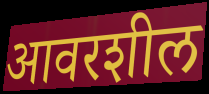
आवरशील